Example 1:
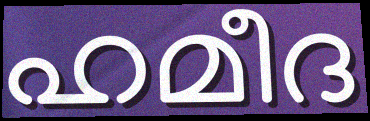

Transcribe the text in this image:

ഹമീദ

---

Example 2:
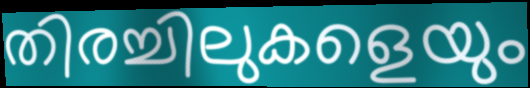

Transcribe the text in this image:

തിരച്ചിലുകളെയും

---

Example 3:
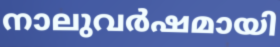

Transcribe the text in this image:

നാലുവർഷമായി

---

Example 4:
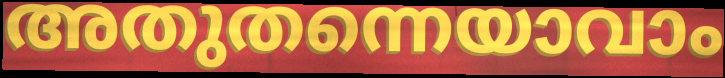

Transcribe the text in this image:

അതുതന്നെയാവാം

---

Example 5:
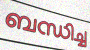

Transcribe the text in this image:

ബന്ധിച്ച